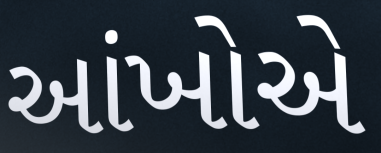
આંખોએ